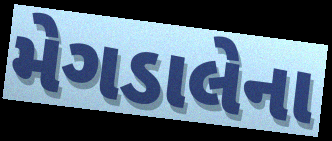
મેગડાલેના